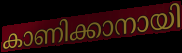
കാണിക്കാനായി